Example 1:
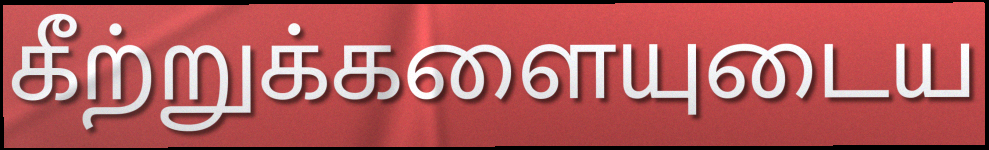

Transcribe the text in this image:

கீற்றுக்களையுடைய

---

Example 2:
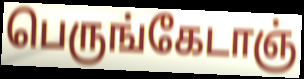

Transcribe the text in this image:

பெருங்கேடாஞ்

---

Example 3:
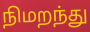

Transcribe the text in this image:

நிமறந்து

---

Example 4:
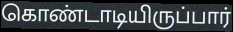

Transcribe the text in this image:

கொண்டாடியிருப்பார்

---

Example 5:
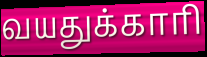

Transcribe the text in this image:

வயதுக்காரி